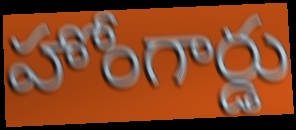
హోంగార్డు